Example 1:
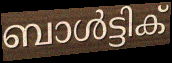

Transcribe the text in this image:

ബാൾട്ടിക്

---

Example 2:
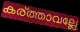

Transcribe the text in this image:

കര്ത്താവല്ലേ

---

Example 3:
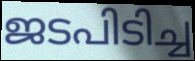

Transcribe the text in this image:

ജടപിടിച്ച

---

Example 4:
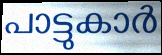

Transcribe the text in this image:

പാട്ടുകാർ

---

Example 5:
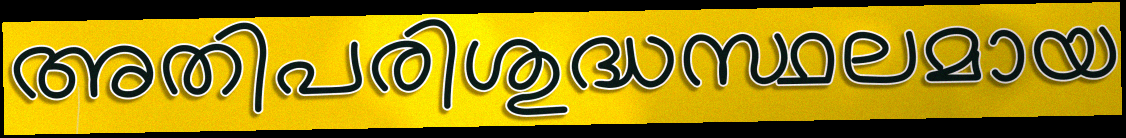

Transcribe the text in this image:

അതിപരിശുദ്ധസ്ഥലമായ